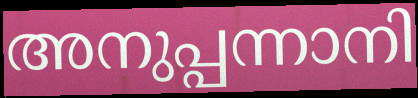
അനുപ്പന്നാനി